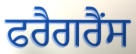
ਫਰੈਗਰੈਂਸ